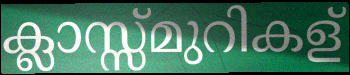
ക്ലാസ്സ്മുറികള്